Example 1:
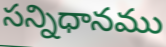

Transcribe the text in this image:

సన్నిధానము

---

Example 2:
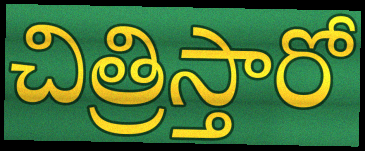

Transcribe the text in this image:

చిత్రిస్తారో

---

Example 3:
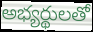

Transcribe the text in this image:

అభ్యర్థులతో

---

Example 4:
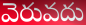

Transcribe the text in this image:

వెరువదు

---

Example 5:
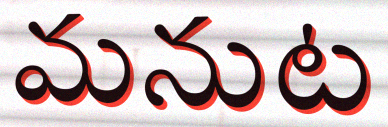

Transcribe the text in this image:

మనుట